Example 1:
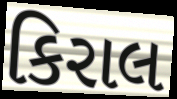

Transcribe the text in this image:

કિરાલ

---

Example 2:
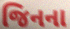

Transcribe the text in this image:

જિનના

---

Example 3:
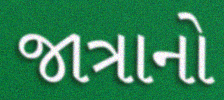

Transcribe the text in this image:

જાત્રાનો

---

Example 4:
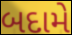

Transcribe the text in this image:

બદામે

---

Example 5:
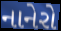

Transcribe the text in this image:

નાનેરો